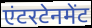
एंटरटेनमेंट